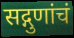
सद्गुणांचं